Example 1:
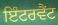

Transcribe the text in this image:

ਇੰਟਰਵੈਂਟ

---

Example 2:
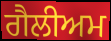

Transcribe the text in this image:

ਗੈਲੀਅਮ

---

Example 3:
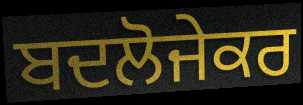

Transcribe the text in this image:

ਬਦਲੋਜੇਕਰ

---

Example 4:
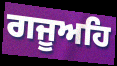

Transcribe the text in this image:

ਗਜੂਅਹਿ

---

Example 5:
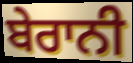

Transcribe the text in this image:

ਬੇਰਾਨੀ